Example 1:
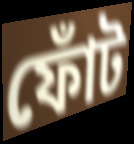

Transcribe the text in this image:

ফোঁট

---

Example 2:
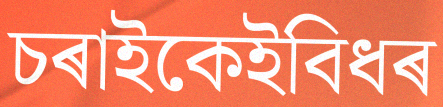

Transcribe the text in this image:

চৰাইকেইবিধৰ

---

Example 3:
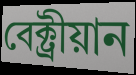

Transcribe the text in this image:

বেক্ট্ৰীয়ান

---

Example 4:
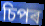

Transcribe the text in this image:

চিপৰ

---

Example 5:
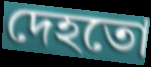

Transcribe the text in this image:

দেহতো